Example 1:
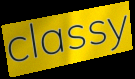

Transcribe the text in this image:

classy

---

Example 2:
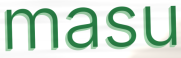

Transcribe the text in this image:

masu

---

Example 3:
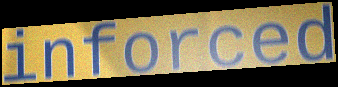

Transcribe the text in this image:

inforced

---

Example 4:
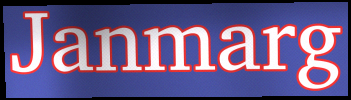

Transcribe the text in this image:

Janmarg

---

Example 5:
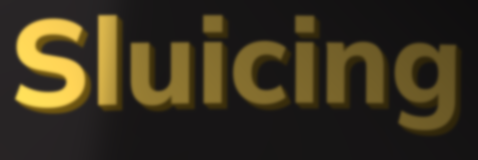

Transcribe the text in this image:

Sluicing